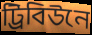
ট্রিবিউনে